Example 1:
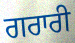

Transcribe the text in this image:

ਗਰਾਰੀ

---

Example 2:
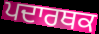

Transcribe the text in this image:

ਪਦਾਰਥਕ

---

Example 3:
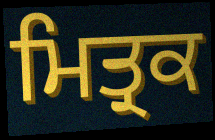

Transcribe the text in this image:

ਮਿਤ੍ਰਕ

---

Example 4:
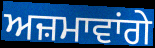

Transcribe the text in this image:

ਅਜ਼ਮਾਵਾਂਗੇ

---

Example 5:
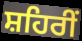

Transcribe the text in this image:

ਸ਼ਹਿਰੀਂ